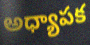
అధ్యాపక